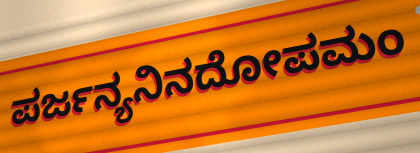
ಪರ್ಜನ್ಯನಿನದೋಪಮಂ